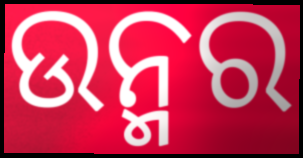
ଉନ୍ମର